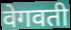
वेगवती